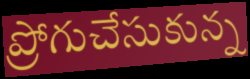
ప్రోగుచేసుకున్న